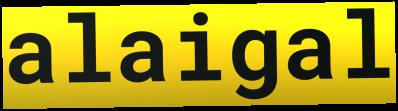
alaigal